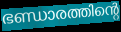
ഭണ്ഡാരത്തിന്റെ